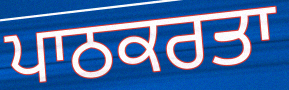
ਪਾਠਕਰਤਾ